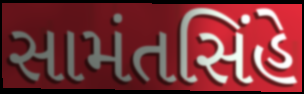
સામંતસિંહે